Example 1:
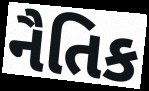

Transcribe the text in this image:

નૈતિક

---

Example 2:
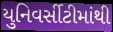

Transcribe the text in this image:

યુનિવર્સીટીમાંથી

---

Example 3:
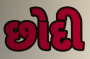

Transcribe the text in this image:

છોદી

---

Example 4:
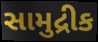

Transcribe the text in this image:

સામુદ્રીક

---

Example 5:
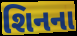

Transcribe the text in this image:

શિનના